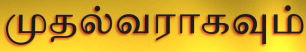
முதல்வராகவும்